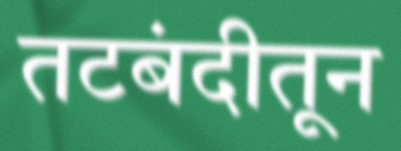
तटबंदीतून